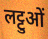
लट्टुओं